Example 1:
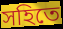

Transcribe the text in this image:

সহিতে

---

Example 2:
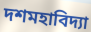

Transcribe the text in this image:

দশমহাবিদ্যা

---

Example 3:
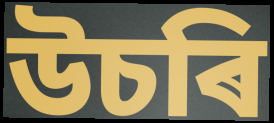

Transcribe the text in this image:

উচৰি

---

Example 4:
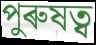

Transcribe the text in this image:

পুৰুষত্ব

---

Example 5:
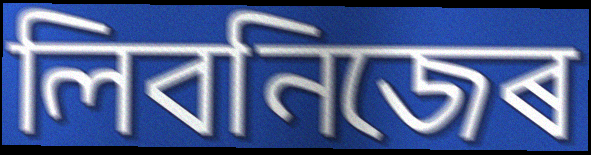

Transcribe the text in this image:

লিবনিজেৰ